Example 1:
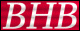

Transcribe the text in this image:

BHB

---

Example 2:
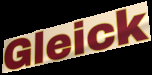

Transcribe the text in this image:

Gleick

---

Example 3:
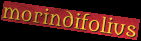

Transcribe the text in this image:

morindifolius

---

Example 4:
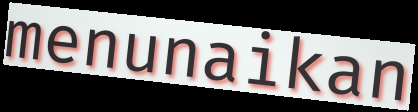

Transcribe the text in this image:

menunaikan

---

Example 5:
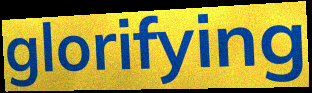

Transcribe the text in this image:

glorifying